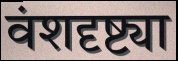
वंशदृष्ट्या